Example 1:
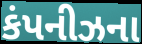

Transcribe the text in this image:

કંપનીઝના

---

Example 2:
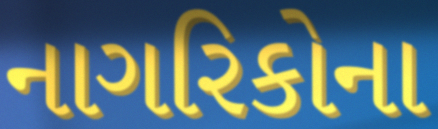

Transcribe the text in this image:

નાગરિકોના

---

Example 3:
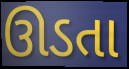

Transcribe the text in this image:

ઊડતા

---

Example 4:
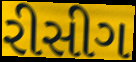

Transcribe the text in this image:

રીસીગ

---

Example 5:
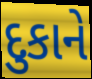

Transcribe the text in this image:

દુકાને